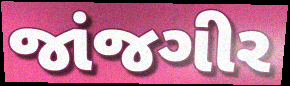
જાંજગીર